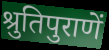
श्रुतिपुराणें